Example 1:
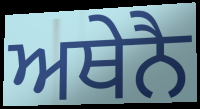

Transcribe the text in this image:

ਅਥੇਨੈ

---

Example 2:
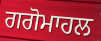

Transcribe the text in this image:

ਗਗੋਮਾਹਲ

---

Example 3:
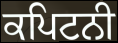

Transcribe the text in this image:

ਕਪਿਟਨੀ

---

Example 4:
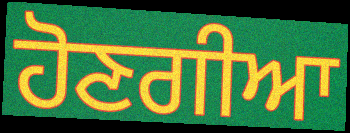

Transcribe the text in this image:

ਹੋਣਗੀਆ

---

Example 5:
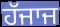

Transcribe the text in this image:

ਹੱਜਾਜ